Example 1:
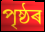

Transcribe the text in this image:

পৃষ্ঠৰ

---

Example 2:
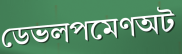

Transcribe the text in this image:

ডেভলপমেণঅট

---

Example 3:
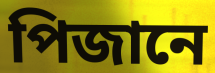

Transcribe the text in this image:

পিজানে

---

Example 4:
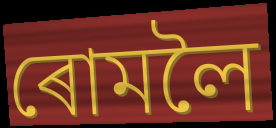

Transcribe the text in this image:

ৰোমলৈ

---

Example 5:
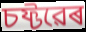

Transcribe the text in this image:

চফ্টৱেৰ